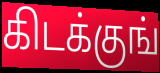
கிடக்குங்